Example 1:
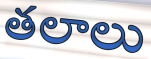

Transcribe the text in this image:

తలాలు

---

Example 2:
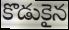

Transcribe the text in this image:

కొడుకైన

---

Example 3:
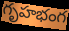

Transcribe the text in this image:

గృహభంగ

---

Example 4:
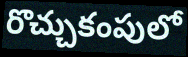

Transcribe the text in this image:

రొచ్చుకంపులో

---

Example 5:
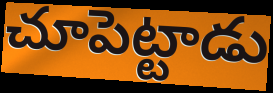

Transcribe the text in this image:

చూపెట్టాడు